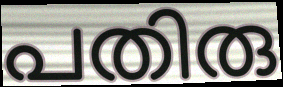
പതിരു